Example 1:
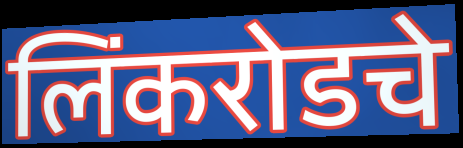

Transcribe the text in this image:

लिंकरोडचे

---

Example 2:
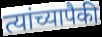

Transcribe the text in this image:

त्यांच्यापैकी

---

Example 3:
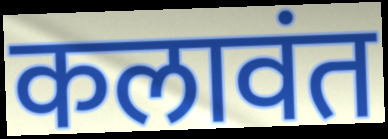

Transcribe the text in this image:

कलावंत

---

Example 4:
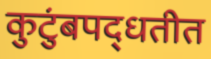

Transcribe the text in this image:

कुटुंबपद्धतीत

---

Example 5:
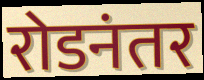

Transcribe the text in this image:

रोडनंतर